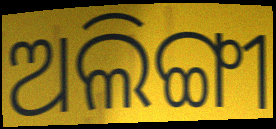
ଅଲିଙ୍ଗୀ